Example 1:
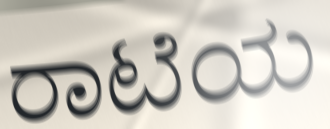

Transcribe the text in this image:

ರಾಟೆಯ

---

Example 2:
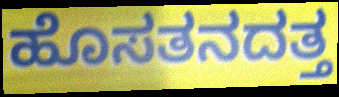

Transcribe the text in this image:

ಹೊಸತನದತ್ತ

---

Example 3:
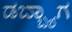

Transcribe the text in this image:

ಡಬ್ಬ್ಯಾಗ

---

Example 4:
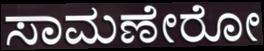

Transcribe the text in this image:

ಸಾಮಣೇರೋ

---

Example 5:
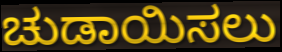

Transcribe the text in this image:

ಚುಡಾಯಿಸಲು